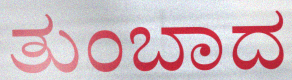
ತುಂಬಾದ